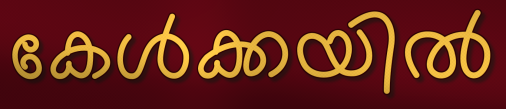
കേൾക്കയിൽ